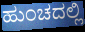
ಹುಂಚದಲ್ಲಿ